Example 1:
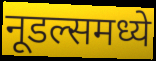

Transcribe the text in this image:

नूडल्समध्ये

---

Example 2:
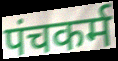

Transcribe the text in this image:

पंचकर्म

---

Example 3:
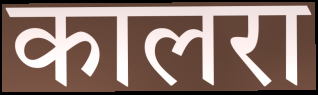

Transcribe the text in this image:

कालरा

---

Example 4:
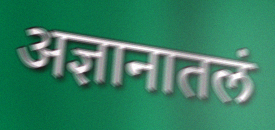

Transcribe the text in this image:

अज्ञानातलं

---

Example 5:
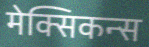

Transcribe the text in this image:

मेक्सिकन्स